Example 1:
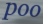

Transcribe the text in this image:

poo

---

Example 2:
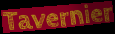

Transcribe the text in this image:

Tavernier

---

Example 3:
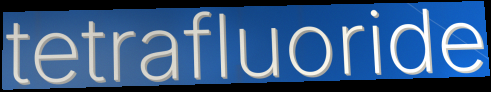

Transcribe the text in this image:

tetrafluoride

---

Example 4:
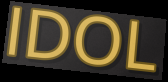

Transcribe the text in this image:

IDOL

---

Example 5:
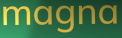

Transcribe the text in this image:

magna